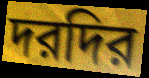
দরদির